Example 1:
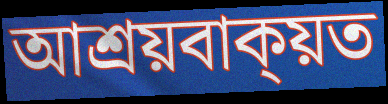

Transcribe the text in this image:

আশ্ৰয়বাক্য়ত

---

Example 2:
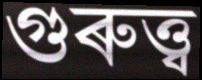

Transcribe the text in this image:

গুৰুত্ত্ব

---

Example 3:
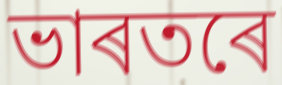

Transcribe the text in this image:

ভাৰতৰে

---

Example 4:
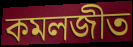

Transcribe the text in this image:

কমলজীত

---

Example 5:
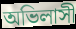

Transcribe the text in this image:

অভিলাসী